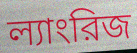
ল্যাংরিজ